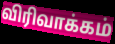
விரிவாக்கம்